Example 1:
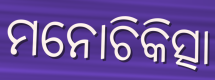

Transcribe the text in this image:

ମନୋଚିକିତ୍ସା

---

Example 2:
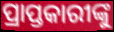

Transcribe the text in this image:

ପ୍ରାପ୍ତକାରୀଙ୍କୁ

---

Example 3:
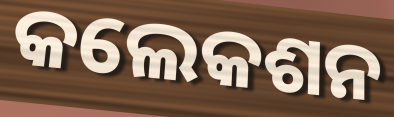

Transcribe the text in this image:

କଲେକଶନ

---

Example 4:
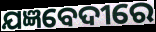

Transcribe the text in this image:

ଯଜ୍ଞବେଦୀରେ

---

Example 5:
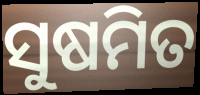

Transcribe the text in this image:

ସୁଷମିତ